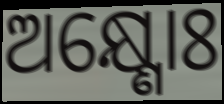
ଅକ୍ଷ୍ଣୋଃ